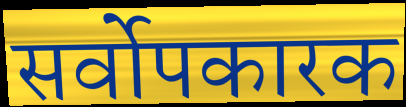
सर्वोपकारक